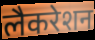
लैकरेशन